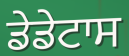
ਡੇਡੇਟਾਸ